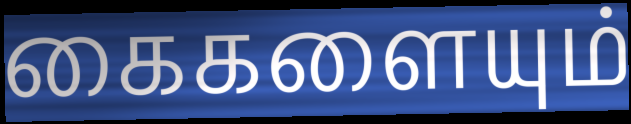
கைகளையும்